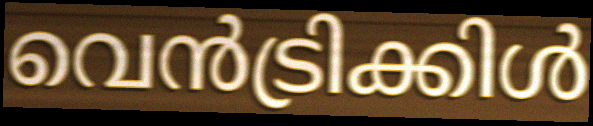
വെൻട്രിക്കിൾ